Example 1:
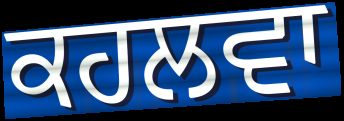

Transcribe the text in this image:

ਕਹਲਵਾ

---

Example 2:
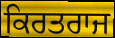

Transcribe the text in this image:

ਕਿਰਤਰਾਜ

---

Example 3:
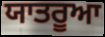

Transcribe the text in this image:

ਯਾਤਰੂਆ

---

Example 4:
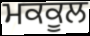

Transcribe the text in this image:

ਮਕਕੂਲ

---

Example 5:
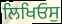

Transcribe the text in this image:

ਲਿਖਿਓਸੁ